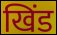
खिंड